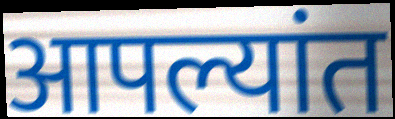
आपल्यांत